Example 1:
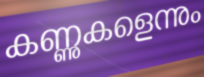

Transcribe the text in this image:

കണ്ണുകളെന്നും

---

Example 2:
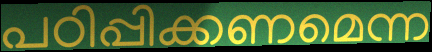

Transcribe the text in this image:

പഠിപ്പിക്കണമെന്ന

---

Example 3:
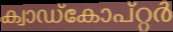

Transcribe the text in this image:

ക്വാഡ്കോപ്റ്റർ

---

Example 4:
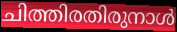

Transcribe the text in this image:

ചിത്തിരതിരുനാൾ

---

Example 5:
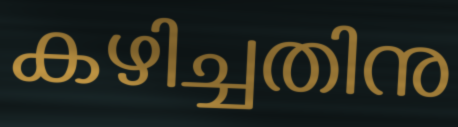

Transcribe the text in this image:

കഴിച്ചതിനു